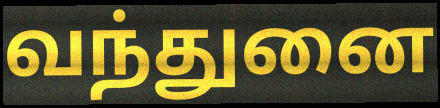
வந்துனை